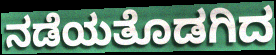
ನಡೆಯತೊಡಗಿದ